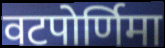
वटपोर्णिमा